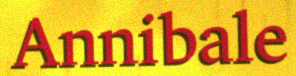
Annibale